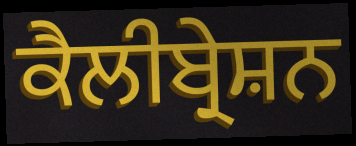
ਕੈਲੀਬ੍ਰੇਸ਼ਨ